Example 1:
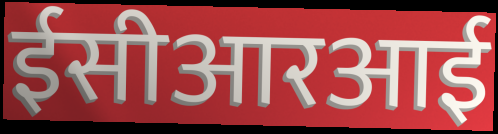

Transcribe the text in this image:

ईसीआरआई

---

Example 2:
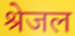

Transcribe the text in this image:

श्रेजल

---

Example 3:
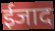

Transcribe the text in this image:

ईजाद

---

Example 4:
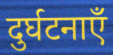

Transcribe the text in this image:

दुर्घटनाएँ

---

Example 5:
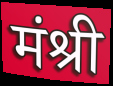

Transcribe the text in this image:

मंश्री